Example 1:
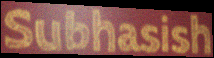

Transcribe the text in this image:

Subhasish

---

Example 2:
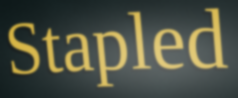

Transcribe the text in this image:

Stapled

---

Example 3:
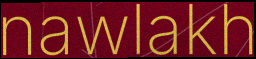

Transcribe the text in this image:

nawlakh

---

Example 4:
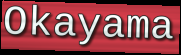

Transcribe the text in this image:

Okayama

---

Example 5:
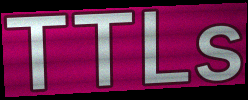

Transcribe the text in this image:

TTLs